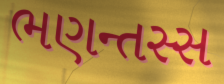
ભણન્તસ્સ